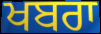
ਖਬਰਾ